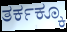
ತರ್ಕಕ್ಕೂ